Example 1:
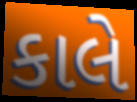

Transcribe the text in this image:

કાલે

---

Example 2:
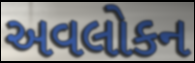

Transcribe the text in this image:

અવલોકન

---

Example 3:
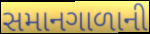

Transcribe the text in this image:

સમાનગાળાની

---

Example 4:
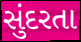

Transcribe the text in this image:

સુંદરતા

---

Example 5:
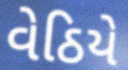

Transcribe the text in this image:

વેઠિયે